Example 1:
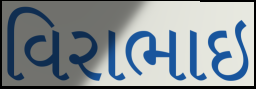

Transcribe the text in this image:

વિરાભાઇ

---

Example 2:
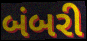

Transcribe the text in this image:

બંબરી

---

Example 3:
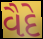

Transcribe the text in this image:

વૈદે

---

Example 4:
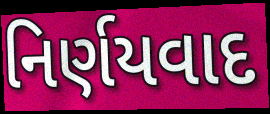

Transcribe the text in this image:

નિર્ણયવાદ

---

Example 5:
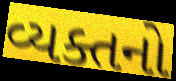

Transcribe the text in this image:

વ્યક્તનો